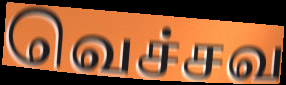
வெச்சவ